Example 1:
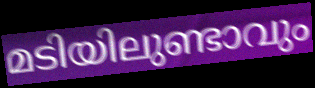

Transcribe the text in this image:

മടിയിലുണ്ടാവും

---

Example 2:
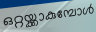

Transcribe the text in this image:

ഒറ്റയ്ക്കാകുമ്പോൾ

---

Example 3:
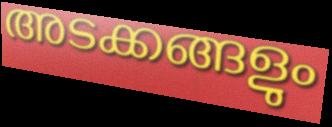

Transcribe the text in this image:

അടക്കങ്ങളും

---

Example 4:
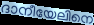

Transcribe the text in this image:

ദാനീയേലിനെ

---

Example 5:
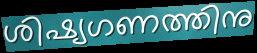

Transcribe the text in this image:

ശിഷ്യഗണത്തിനു